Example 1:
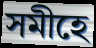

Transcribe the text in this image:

সমীহে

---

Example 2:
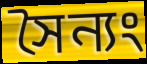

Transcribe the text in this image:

সৈন্যং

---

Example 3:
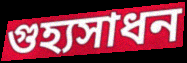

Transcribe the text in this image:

গুহ্যসাধন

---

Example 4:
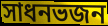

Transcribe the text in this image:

সাধনভজন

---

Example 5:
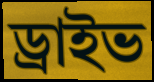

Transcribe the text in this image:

ড্রাইভ